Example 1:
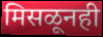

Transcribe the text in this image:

मिसळूनही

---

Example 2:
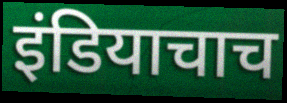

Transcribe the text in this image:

इंडियाचाच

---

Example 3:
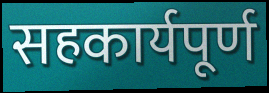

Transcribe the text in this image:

सहकार्यपूर्ण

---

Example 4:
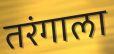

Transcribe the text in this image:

तरंगाला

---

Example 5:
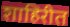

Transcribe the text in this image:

शाहिरीत